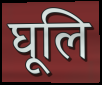
घूलि